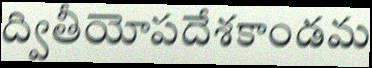
ద్వితీయోపదేశకాండమ